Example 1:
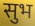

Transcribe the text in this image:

सुभ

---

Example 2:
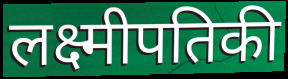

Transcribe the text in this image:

लक्ष्मीपतिकी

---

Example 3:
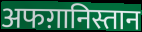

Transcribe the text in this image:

अफग़ानिस्तान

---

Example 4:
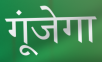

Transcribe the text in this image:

गूंजेगा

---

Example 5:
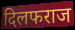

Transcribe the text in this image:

दिलफराज